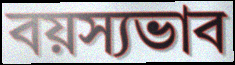
বয়স্যভাব